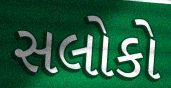
સલોકો